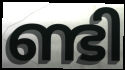
ണ്ടി